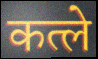
कत्ले